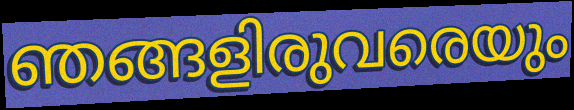
ഞങ്ങളിരുവരെയും